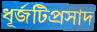
ধূর্জটিপ্রসাদ